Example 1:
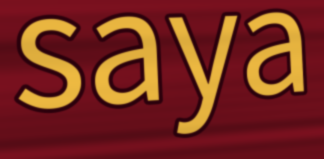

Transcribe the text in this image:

saya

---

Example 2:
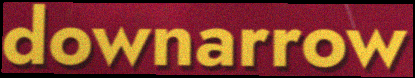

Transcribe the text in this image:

downarrow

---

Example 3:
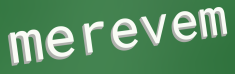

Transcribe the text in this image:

merevem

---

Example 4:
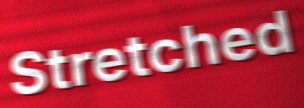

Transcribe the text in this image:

Stretched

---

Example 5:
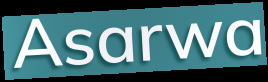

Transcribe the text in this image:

Asarwa